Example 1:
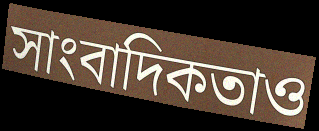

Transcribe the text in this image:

সাংবাদিকতাও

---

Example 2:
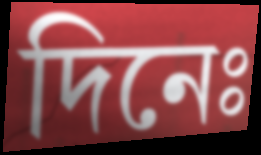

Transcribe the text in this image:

দিনেঃ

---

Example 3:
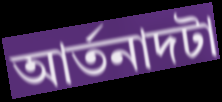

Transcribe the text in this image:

আর্তনাদটা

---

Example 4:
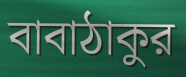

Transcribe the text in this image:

বাবাঠাকুর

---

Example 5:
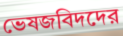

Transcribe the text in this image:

ভেষজবিদদের